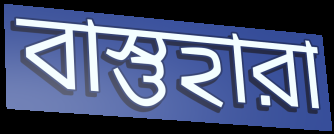
বাস্তুহারা